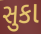
સુકા